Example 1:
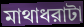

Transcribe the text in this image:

মাথাধরাটা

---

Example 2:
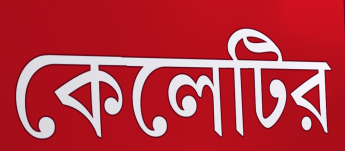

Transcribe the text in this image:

কেলেটির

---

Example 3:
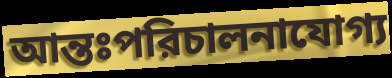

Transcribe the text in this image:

আন্তঃপরিচালনাযোগ্য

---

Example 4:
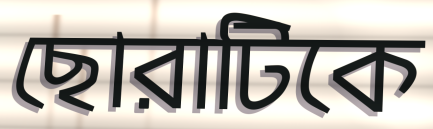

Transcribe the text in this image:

ছোরাটিকে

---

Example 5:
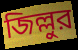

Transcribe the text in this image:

জিল্লুর